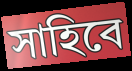
সাহিবে